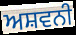
ਅਸ਼ਵਨੀ